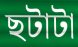
ছটাটা